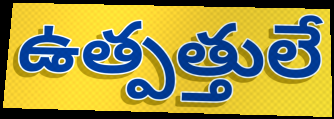
ఉత్పత్తులే